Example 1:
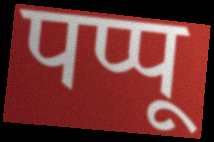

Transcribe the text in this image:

पप्पू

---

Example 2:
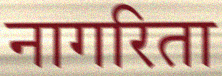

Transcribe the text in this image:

नागरिता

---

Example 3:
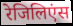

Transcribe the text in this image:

रेजिलिएंस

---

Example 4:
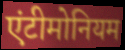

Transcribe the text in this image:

एंटीमोनियम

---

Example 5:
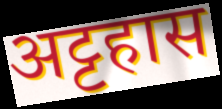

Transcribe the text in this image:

अट्टहास